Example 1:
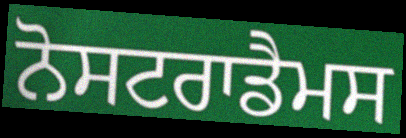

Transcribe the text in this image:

ਨੋਸਟਰਾਡੈਮਸ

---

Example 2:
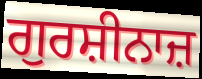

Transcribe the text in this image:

ਗੁਰਸ਼ੀਨਾਜ਼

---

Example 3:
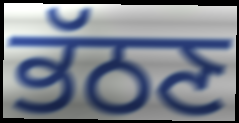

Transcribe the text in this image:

ਭੱਠਣ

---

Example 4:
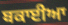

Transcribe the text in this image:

ਬਕਾਈਆ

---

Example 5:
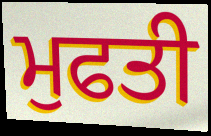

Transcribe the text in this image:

ਮੁਫਤੀ